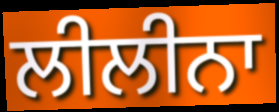
ਲੀਲੀਨਾ